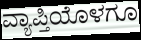
ವ್ಯಾಪ್ತಿಯೊಳಗೂ